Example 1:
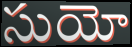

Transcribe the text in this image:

సుయో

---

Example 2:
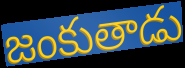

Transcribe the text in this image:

జంకుతాడు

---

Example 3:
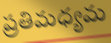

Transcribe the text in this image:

ప్రతిమధ్యమ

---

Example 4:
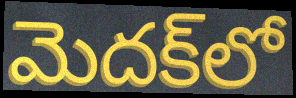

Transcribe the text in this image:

మెదక్‌లో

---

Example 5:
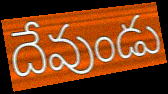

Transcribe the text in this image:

దేవుండు